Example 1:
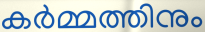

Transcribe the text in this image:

കർമ്മത്തിനും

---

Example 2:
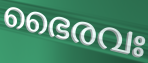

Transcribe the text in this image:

ഭൈരവഃ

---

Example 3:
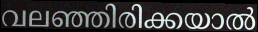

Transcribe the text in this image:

വലഞ്ഞിരിക്കയാൽ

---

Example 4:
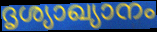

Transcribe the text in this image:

ദൃശ്യാഖ്യാനം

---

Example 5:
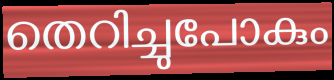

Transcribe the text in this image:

തെറിച്ചുപോകും